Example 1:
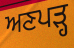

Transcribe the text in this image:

ਅਣਪੜ੍ਹ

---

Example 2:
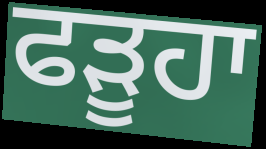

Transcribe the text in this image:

ਫੜੂਹਾ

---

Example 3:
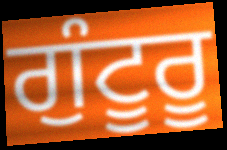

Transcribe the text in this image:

ਗੁੰਟੂਰੂ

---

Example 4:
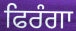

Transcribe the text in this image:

ਫਿਰੰਗਾ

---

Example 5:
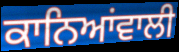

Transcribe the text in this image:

ਕਾਨਿਆਂਵਾਲੀ